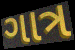
ગાત્ર